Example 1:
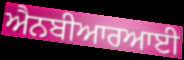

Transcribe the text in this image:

ਐਨਬੀਆਰਆਈ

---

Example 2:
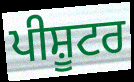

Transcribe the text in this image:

ਪੀਸ਼ੂਟਰ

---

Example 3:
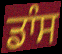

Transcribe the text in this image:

ਡਾੰਸ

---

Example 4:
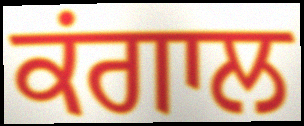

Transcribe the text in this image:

ਕਂਗਾਲ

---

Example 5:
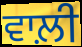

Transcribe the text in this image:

ਵਾਲ਼ੀ